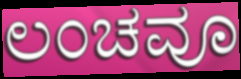
ಲಂಚವೂ